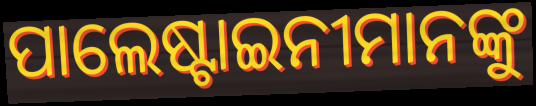
ପାଲେଷ୍ଟାଇନୀମାନଙ୍କୁ